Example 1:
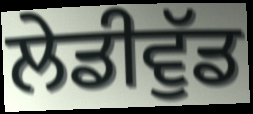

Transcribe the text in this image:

ਲੇਡੀਵੁੱਡ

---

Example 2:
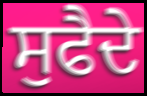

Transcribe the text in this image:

ਸੁਫੈਦੇ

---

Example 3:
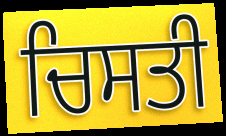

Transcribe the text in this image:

ਚਿਸਤੀ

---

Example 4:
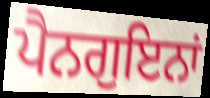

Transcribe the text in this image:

ਪੈਨਗੁਇਨਾਂ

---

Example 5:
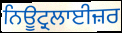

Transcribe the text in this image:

ਨਿਊਟ੍ਰਲਾਈਜ਼ਰ